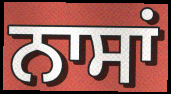
ਨਾਸਾਂ